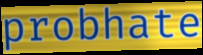
probhate